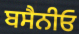
ਬਸੈਨੀਓ